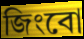
জিংবো